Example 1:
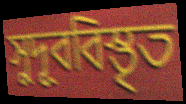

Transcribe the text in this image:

সুদূববিস্তৃত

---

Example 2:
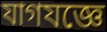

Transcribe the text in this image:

যাগযজ্ঞে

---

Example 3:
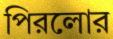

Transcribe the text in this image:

পিরলোর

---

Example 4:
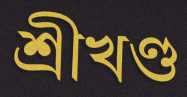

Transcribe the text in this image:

শ্রীখণ্ড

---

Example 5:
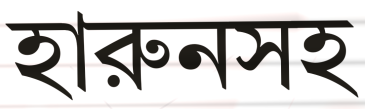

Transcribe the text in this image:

হারুনসহ